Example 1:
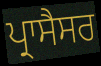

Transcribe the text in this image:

ਪ੍ਰਾਸੈਸਰ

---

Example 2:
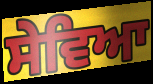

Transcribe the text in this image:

ਸੇਵਿਆ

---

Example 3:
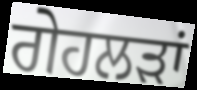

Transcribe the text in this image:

ਗੇਹਲੜਾਂ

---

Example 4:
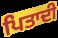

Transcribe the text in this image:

ਪਿਤਾਦੀ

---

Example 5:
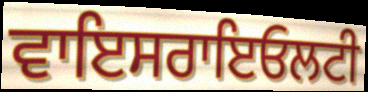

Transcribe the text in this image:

ਵਾਇਸਰਾਇਓਲਟੀ